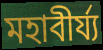
মহাবীর্য্য